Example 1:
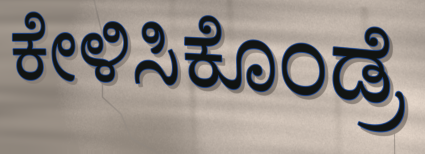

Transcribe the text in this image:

ಕೇಳಿಸಿಕೊಂಡ್ರೆ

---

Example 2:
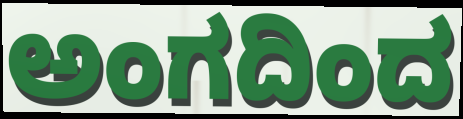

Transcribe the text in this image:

ಅಂಗದಿಂದ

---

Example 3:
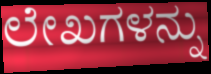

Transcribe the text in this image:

ಲೇಖಗಳನ್ನು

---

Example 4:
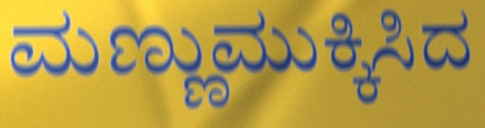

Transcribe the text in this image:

ಮಣ್ಣುಮುಕ್ಕಿಸಿದ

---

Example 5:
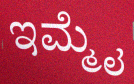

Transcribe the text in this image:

ಇಮ್ಮೈ